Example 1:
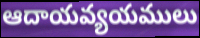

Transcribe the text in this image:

ఆదాయవ్యయములు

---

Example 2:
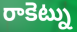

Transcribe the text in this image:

రాకెట్ను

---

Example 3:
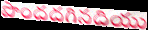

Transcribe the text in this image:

పొందదగినదియు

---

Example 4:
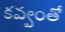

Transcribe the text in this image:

కవ్వంతో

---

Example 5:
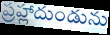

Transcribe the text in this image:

ప్రహ్లాదుండును